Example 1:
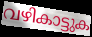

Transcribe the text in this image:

വഴികാട്ടുക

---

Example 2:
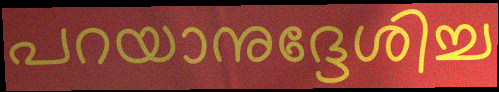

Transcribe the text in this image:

പറയാനുദ്ദേശിച്ച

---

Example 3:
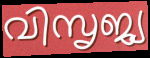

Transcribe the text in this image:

വിസൃജ്യ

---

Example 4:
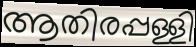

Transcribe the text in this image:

ആതിരപ്പള്ളി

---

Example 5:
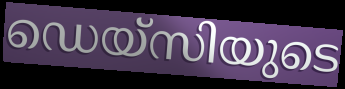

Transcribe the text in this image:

ഡെയ്സിയുടെ